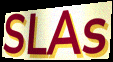
SLAs